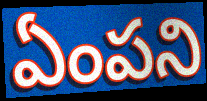
ఏంపని